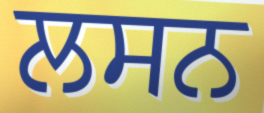
ਲਸਨ